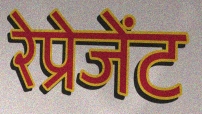
रेप्रेजेंट